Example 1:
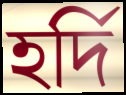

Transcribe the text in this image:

হৰ্দি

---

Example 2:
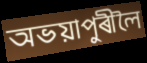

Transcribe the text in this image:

অভয়াপুৰীলৈ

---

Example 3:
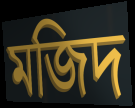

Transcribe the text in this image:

মজিদ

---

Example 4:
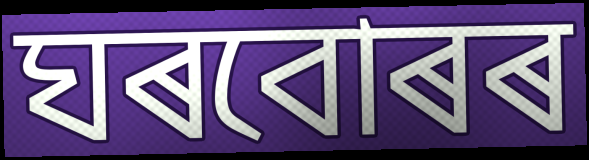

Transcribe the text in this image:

ঘৰবোৰৰ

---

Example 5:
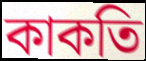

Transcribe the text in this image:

কাকতি